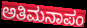
ಅತಿಮನಾಪಂ